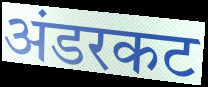
अंडरकट